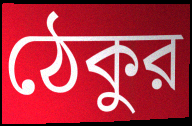
ঠেকুর